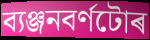
ব্যঞ্জনবৰ্ণটোৰ